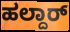
ಹಲ್ದಾರ್